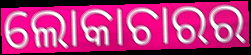
ଲୋକାଚାରର